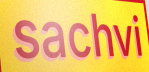
sachvi